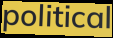
political